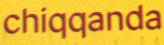
chiqqanda